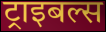
ट्राइबल्स